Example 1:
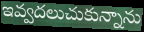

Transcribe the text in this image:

ఇవ్వదలుచుకున్నాను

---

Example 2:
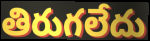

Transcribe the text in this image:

తిరుగలేదు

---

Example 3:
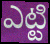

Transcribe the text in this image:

ఎట్టి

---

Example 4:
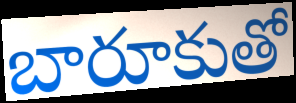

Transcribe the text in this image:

బారూకుతో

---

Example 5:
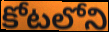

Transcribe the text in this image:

కోటలోని